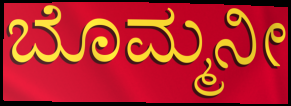
ಬೊಮ್ಮನೀ